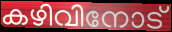
കഴിവിനോട്